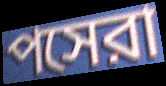
পসেরা